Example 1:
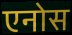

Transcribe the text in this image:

एनोस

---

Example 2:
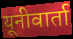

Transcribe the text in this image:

यूनीवार्ता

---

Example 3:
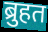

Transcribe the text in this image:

ब्रुहत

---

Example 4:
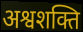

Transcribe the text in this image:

अश्वशक्ति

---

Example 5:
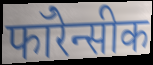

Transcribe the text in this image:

फॉरेन्सीक